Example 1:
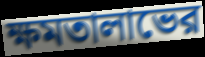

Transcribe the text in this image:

ক্ষমতালাভের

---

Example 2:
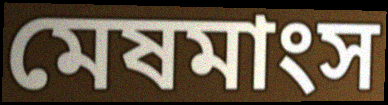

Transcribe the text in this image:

মেষমাংস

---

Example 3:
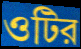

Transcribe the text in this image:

ওটির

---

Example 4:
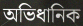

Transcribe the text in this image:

অভিধানিক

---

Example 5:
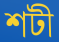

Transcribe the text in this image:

শটী